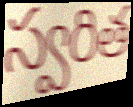
స్వరిత